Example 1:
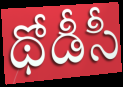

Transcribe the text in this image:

థోడీసీ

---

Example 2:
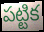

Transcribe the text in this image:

పట్టిక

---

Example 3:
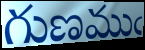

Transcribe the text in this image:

గుణముఁ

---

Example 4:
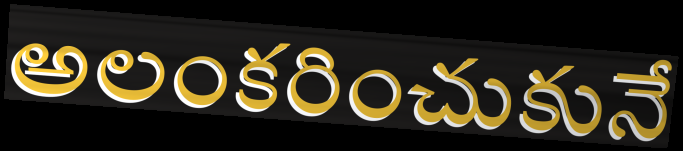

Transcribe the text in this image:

అలంకరించుకునే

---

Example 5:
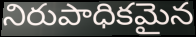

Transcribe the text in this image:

నిరుపాధికమైన